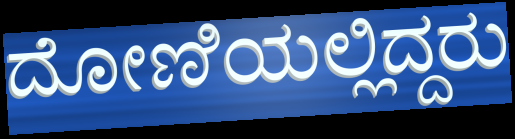
ದೋಣಿಯಲ್ಲಿದ್ದರು